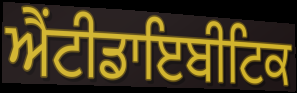
ਐਂਟੀਡਾਇਬੀਟਿਕ